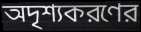
অদৃশ্যকরণের